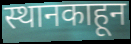
स्थानकाहून